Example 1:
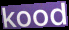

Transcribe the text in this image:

kood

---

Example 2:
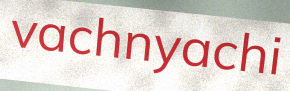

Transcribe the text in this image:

vachnyachi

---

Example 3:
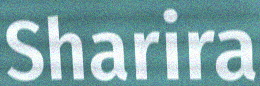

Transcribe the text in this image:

Sharira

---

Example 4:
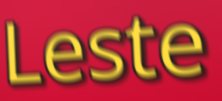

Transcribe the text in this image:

Leste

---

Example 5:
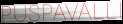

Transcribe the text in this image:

PUSPAVALLI